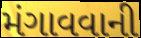
મંગાવવાની